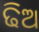
ଢିଅ